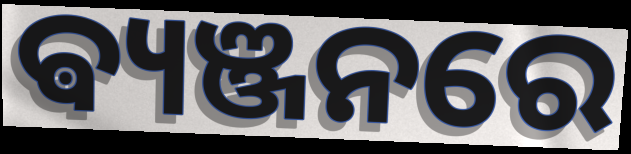
ଵ୍ୟଞ୍ଜନରେ